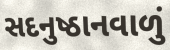
સદનુષ્ઠાનવાળું